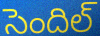
సెందిల్